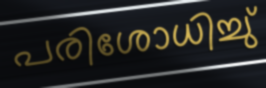
പരിശോധിച്ചു്